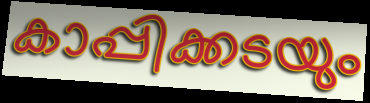
കാപ്പിക്കടയും